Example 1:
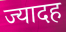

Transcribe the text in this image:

ज्यादह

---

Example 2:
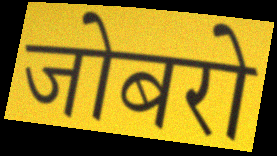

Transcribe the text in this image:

जोबरो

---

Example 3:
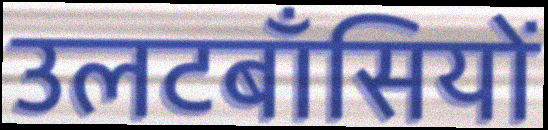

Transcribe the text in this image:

उलटबाँसियों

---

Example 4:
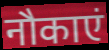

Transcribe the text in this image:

नौकाएं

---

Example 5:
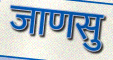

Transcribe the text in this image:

जाणसु